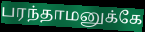
பரந்தாமனுக்கே